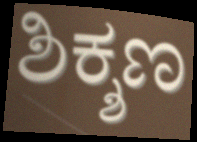
ಶಿಕ್ಶಣ